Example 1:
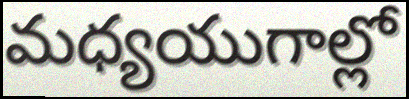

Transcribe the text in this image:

మధ్యయుగాల్లో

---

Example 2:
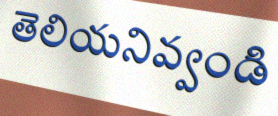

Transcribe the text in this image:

తెలియనివ్వండి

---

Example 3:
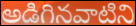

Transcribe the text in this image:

అడిగినవాటిని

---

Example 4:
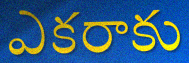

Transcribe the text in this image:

ఎకరాకు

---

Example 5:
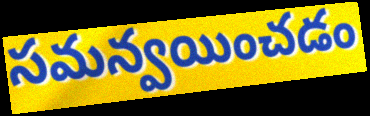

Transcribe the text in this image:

సమన్వయించడం